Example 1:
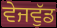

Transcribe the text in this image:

ਵੇਜਵੁੱਡ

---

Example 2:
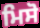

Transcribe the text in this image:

ਮਿਸੋ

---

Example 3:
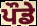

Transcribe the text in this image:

ਪੌਡੇ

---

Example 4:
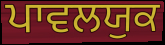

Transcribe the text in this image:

ਪਾਵਲਯੁਕ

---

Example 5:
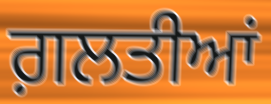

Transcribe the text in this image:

ਗ਼ਲਤੀਆਂ